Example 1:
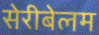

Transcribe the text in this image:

सेरीबेलम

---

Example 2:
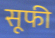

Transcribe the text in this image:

सूफी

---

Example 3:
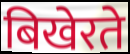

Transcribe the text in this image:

बिखेरते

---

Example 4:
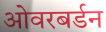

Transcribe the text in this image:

ओवरबर्डन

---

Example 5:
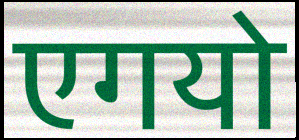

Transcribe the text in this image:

एगयो